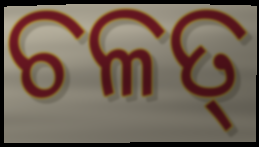
ଚଳତ୍